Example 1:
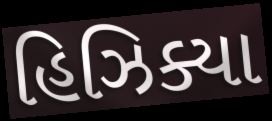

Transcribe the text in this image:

હિઝિક્યા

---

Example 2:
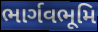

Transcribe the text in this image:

ભાર્ગવભૂમિ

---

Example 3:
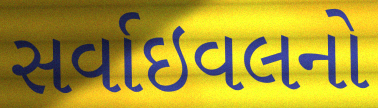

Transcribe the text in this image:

સર્વાઇવલનો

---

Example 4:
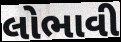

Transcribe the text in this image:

લોભાવી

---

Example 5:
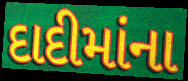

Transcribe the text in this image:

દાદીમાંના